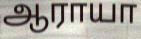
ஆராயா